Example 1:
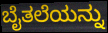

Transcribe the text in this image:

ಬೈತಲೆಯನ್ನು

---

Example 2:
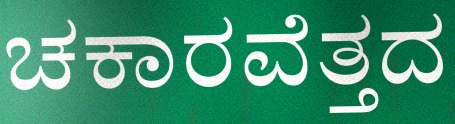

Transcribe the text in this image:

ಚಕಾರವೆತ್ತದ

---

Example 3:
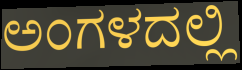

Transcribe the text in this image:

ಅಂಗಳದಲ್ಲಿ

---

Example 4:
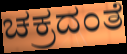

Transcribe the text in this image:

ಚಕ್ರದಂತೆ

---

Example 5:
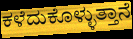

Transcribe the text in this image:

ಕಳೆದುಕೊಳ್ಳುತ್ತಾನೆ